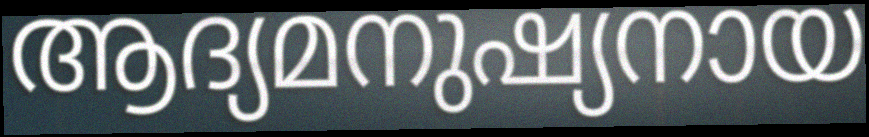
ആദ്യമനുഷ്യനായ